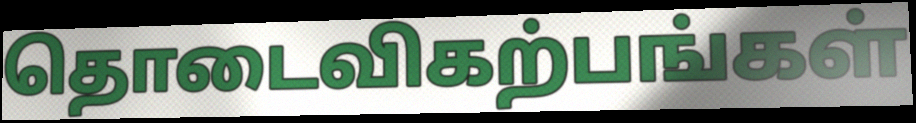
தொடைவிகற்பங்கள்